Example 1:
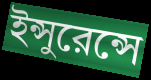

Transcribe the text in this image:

ইন্সুরেন্সে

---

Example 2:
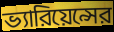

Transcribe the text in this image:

ভ্যারিয়েন্সের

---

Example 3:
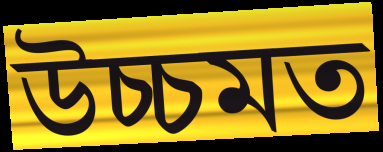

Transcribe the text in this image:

উচ্চমত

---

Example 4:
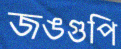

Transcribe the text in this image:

জঙগুপি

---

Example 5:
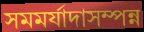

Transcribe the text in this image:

সমমর্যাদাসম্পন্ন